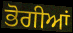
ਭੋਗੀਆਂ